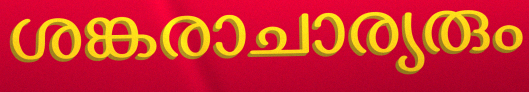
ശങ്കരാചാര്യരും